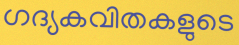
ഗദ്യകവിതകളുടെ